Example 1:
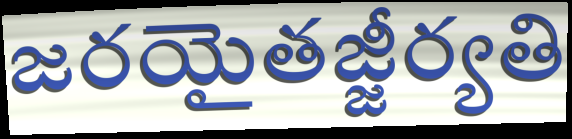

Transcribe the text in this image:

జరయైతజ్జీర్యతి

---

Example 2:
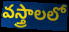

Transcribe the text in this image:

వస్త్రాలలో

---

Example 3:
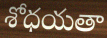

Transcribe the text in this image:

శోధయతా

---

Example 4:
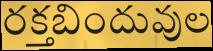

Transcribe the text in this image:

రక్తబిందువుల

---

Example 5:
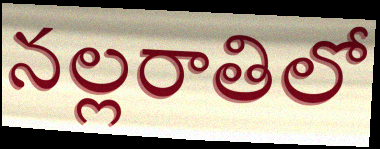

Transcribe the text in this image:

నల్లరాతిలో